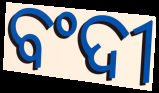
ବଂଦୀ